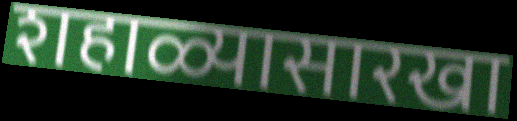
शहाळ्यासारखा